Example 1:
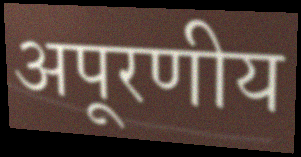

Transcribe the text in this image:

अपूरणीय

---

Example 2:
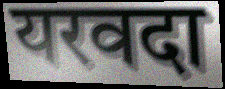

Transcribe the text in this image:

यरवदा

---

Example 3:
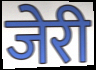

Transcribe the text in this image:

जेरी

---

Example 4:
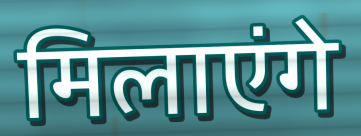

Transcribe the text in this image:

मिलाएंगे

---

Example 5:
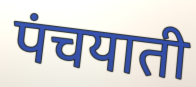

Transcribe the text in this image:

पंचयाती